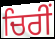
ਚਿਰੀਂ